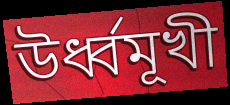
উর্ধ্বমূখী